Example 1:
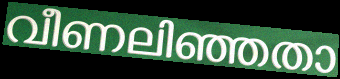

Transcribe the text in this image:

വീണലിഞ്ഞതാ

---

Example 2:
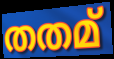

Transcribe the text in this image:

തതമ്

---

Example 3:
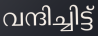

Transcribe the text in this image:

വന്ദിച്ചിട്ട്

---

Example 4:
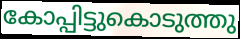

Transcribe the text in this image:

കോപ്പിട്ടുകൊടുത്തു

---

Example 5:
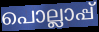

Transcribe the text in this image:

പൊല്ലാപ്പ്